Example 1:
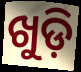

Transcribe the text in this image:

ଖୁଡ଼ି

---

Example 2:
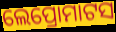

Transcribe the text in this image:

ଲେପ୍ରୋମାଟସ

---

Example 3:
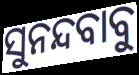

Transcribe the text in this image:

ସୁନନ୍ଦବାବୁ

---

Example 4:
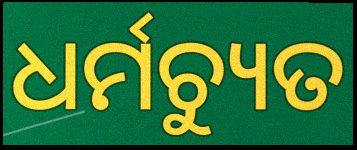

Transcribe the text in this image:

ଧର୍ମଚ୍ୟୁତ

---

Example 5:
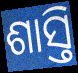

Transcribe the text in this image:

ଶାସ୍ତି